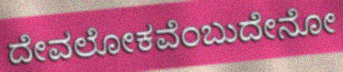
ದೇವಲೋಕವೆಂಬುದೇನೋ